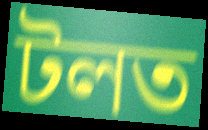
টলত